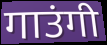
गाउंगी